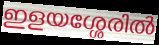
ഇളയശ്ശേരിൽ